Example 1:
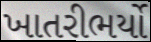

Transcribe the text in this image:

ખાતરીભર્યો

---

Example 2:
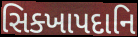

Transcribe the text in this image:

સિક્ખાપદાનિ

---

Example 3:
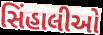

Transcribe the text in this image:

સિંહાલીઓ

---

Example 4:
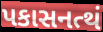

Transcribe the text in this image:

પકાસનત્થં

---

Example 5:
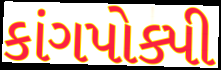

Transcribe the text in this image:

કાંગપોક્પી